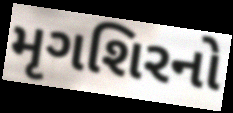
મૃગશિરનો